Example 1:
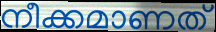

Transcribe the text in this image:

നീക്കമാണത്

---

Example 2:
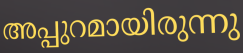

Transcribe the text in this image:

അപ്പുറമായിരുന്നു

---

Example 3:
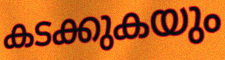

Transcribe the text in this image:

കടക്കുകയും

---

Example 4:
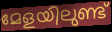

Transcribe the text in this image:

മേളയിലുണ്ട്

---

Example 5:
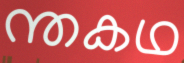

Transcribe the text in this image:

ന്തകഥ